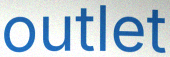
outlet